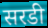
सरडी